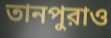
তানপুরাও